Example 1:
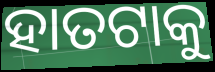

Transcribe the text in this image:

ହାତଟାକୁ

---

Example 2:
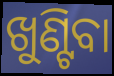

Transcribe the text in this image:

ଖୁଣ୍ଟିବା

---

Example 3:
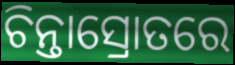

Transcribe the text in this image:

ଚିନ୍ତାସ୍ରୋତରେ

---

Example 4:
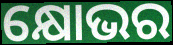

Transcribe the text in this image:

କ୍ଷୋଭର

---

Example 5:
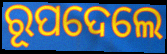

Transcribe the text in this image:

ରୂପଦେଲେ